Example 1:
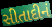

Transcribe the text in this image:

સીતાદીનં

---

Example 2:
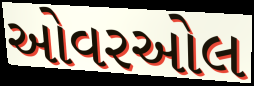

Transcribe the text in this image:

ઓવરઓલ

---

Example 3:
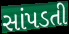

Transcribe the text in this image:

સાંપડતી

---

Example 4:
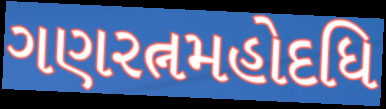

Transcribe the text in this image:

ગણરત્નમહોદધિ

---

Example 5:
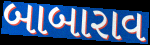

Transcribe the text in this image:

બાબારાવ